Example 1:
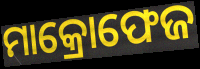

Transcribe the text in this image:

ମାକ୍ରୋଫେଜ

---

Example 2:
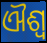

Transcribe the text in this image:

ଐଶ୍ୱ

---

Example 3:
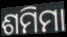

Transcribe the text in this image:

ଶମିମା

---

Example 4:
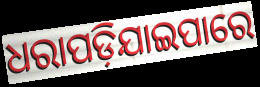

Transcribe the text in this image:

ଧରାପଡ଼ିଯାଇପାରେ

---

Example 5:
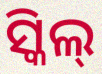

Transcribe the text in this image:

ସ୍କିଲ୍